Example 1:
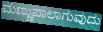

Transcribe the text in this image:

ಮಣ್ಣುಪಾಲಾಗುವುದು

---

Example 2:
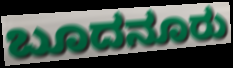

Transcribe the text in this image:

ಬೂದನೂರು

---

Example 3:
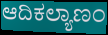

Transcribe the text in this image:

ಆದಿಕಲ್ಯಾಣಂ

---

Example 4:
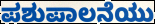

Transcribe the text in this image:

ಪಶುಪಾಲನೆಯು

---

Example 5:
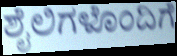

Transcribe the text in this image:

ಶೈಲಿಗಳೊಂದಿಗೆ